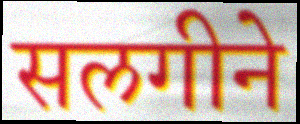
सलगीने